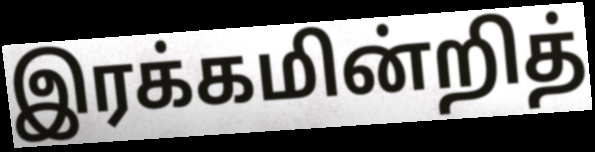
இரக்கமின்றித்